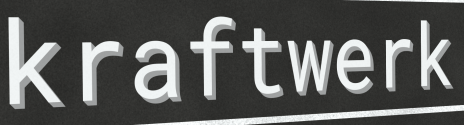
kraftwerk